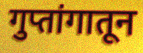
गुप्तांगातून